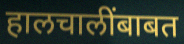
हालचालींबाबत